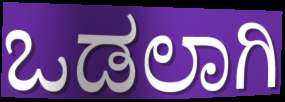
ಒಡಲಾಗಿ